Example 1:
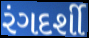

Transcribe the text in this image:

રંગદર્શી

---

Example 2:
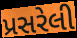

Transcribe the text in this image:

પ્રસરેલી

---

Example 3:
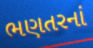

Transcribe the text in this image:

ભણતરનાં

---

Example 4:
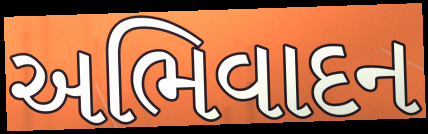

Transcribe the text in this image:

અભિવાદન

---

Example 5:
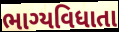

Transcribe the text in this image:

ભાગ્યવિધાતા